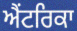
ਐਂਟਰਿਕਾ